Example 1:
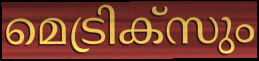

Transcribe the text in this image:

മെട്രിക്സും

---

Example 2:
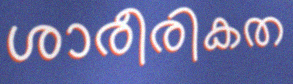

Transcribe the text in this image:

ശാരീരികത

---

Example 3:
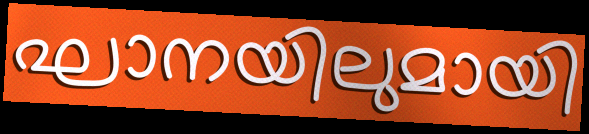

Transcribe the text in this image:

ഘാനയിലുമായി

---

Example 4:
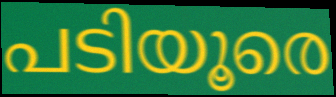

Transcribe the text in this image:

പടിയൂരെ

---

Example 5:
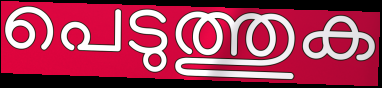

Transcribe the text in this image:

പെടുത്തുക